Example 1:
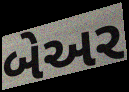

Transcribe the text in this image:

બેઅર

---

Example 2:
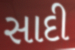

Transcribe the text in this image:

સાદી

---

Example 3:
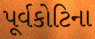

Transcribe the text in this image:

પૂર્વકોટિના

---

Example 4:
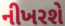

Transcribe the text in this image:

નીખરશે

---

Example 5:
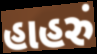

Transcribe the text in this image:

હાહરું